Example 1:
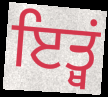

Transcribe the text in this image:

ਇਤ੍ਥਂ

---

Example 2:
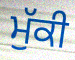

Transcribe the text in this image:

ਮੁੱਕੀ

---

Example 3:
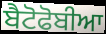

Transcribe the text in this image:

ਬੈਟੋਫੋਬੀਆ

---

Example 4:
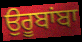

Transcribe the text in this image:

ਉਰੂਬਾਂਬਾ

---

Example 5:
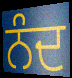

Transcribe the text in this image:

ਨੰਦ